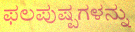
ಫಲಪುಷ್ಪಗಳನ್ನು